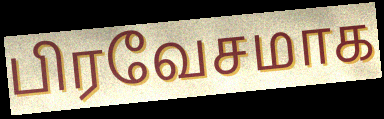
பிரவேசமாக